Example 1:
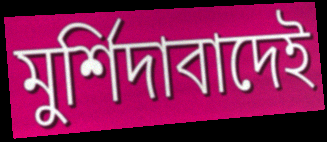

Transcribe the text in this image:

মুর্শিদাবাদেই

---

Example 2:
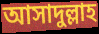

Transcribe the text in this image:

আসাদুল্লাহ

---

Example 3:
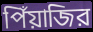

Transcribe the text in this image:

পিঁয়াজির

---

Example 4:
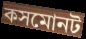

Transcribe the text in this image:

কসমোনট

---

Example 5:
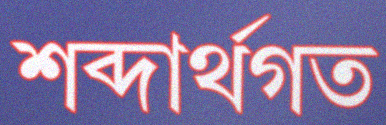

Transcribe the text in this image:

শব্দার্থগত